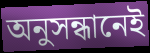
অনুসন্ধানেই